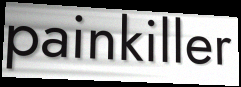
painkiller